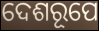
ଦେଶରୂପେ